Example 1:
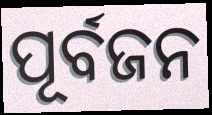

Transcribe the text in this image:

ପୂର୍ବଜନ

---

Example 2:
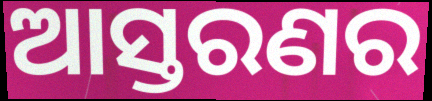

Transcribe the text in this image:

ଆସ୍ତରଣର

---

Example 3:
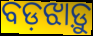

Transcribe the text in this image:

ବଡ଼ଝାଡ଼ୁ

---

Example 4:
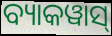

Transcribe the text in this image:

ବ୍ୟାକୱାସ୍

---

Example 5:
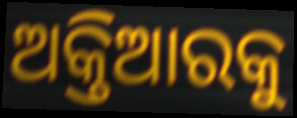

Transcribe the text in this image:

ଅକ୍ତିଆରକୁ